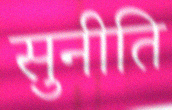
सुनीति